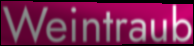
Weintraub